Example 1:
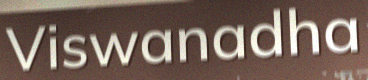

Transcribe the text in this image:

Viswanadha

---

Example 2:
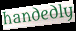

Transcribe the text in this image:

handedly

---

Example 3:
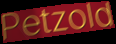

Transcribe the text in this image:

Petzold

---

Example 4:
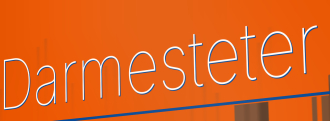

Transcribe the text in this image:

Darmesteter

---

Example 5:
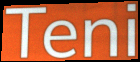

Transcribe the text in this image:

Teni